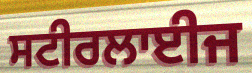
ਸਟੀਰਲਾਈਜ